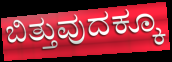
ಬಿತ್ತುವುದಕ್ಕೂ